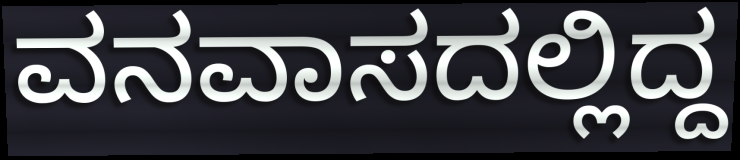
ವನವಾಸದಲ್ಲಿದ್ದ